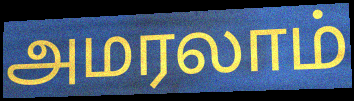
அமரலாம்